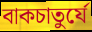
বাকচাতুর্যে